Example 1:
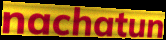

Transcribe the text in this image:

nachatun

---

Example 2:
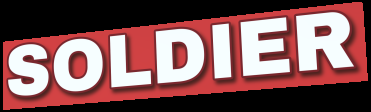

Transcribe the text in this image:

SOLDIER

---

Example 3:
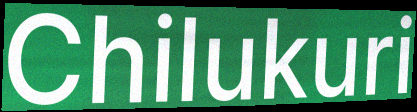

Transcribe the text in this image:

Chilukuri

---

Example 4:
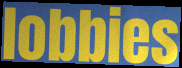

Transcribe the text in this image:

lobbies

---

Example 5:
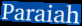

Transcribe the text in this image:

Paraiah